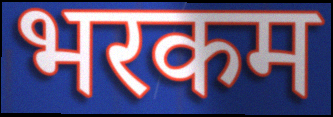
भरकम